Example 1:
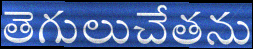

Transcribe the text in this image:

తెగులుచేతను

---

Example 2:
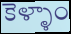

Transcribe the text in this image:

కెళ్ళాం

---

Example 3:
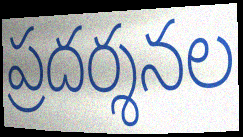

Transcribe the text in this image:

ప్రదర్శనల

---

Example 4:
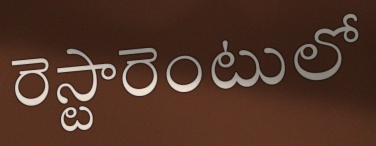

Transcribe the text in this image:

రెస్టారెంటులో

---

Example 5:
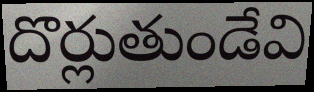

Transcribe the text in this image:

దొర్లుతుండేవి